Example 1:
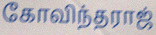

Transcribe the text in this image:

கோவிந்தராஜ்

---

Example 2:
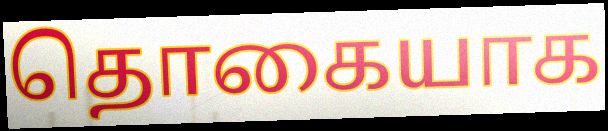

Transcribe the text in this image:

தொகையாக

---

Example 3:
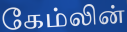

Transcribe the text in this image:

கேம்லின்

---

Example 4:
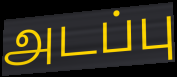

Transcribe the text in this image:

அடப்பு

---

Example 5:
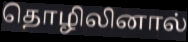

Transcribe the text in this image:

தொழிலினால்